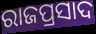
ରାଜପ୍ରସାଦ